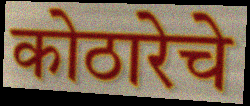
कोठारेचे